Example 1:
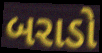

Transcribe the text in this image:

બરાડો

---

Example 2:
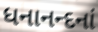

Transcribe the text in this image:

ધનાનન્દનાં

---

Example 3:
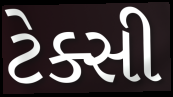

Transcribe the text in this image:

ટેક્સી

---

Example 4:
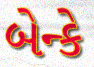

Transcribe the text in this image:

બેન્કે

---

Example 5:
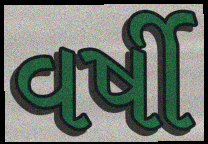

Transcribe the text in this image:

વર્ષી